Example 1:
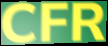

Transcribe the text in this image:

CFR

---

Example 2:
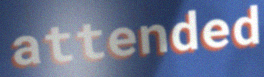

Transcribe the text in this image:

attended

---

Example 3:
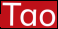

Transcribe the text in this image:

Tao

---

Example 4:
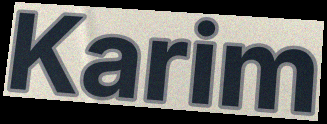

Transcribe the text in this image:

Karim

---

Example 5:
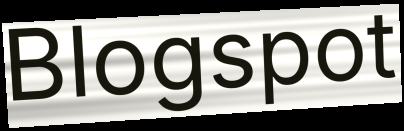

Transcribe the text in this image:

Blogspot